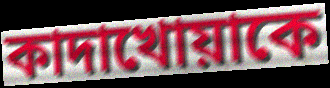
কাদাখোয়াকে